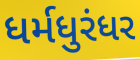
ધર્મધુરંધર